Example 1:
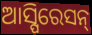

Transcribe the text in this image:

ଆସ୍ପିରେସନ୍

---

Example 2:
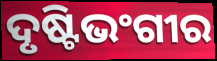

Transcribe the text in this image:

ଦୃଷ୍ଟିଭଂଗୀର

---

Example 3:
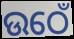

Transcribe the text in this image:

ଉଠେଁ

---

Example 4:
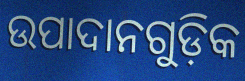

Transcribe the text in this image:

ଉପାଦାନଗୁଡ଼ିକ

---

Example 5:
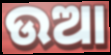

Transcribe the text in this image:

ଉଆ